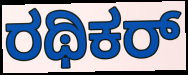
ರಥಿಕರ್